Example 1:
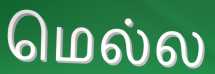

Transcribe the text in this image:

மெல்ல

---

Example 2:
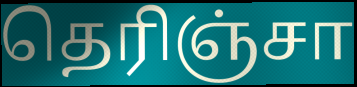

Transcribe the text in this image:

தெரிஞ்சா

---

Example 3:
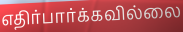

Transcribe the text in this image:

எதிர்பார்க்கவில்லை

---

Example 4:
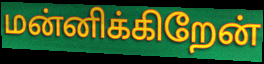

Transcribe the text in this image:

மன்னிக்கிறேன்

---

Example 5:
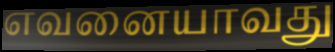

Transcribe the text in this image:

எவனையாவது